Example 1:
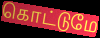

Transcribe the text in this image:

கொட்டுமே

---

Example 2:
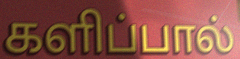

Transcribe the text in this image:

களிப்பால்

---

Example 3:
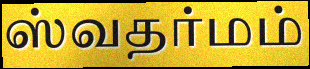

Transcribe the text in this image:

ஸ்வதர்மம்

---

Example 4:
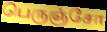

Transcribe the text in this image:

பெருஞ்சோ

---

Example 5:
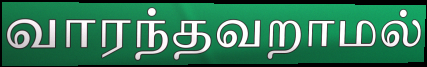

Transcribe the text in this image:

வாரந்தவறாமல்